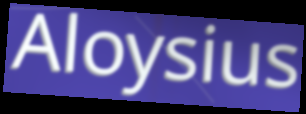
Aloysius